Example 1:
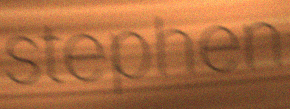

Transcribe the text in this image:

stephen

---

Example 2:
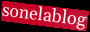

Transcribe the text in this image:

sonelablog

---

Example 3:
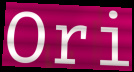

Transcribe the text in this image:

Ori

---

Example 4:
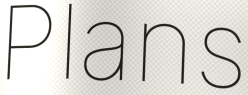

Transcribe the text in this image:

Plans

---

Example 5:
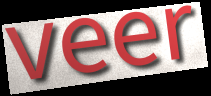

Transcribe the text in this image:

veer